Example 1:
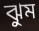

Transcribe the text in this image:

ঝুম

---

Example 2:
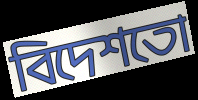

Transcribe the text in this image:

বিদেশতো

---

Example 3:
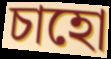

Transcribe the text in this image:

চাহো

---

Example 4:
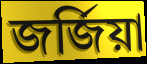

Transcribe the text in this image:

জৰ্জিয়া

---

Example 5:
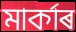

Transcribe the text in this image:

মাৰ্কাৰ